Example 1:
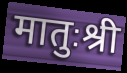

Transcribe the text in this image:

मातुःश्री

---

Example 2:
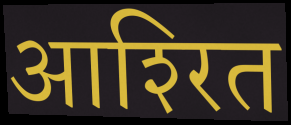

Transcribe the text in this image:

आश्रित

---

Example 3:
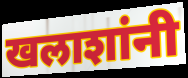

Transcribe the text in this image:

खलाशांनी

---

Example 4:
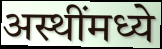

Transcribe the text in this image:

अस्थींमध्ये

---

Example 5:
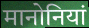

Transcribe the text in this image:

मानोनियां